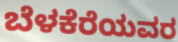
ಬೆಳಕೆರೆಯವರ